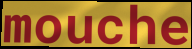
mouche